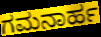
ಗಮನಾರ್ಹ